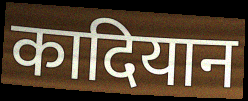
कादियान